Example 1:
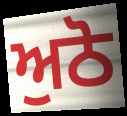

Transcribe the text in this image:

ਅੁਠੋ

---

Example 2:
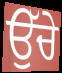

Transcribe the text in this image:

ਉੱਚੇ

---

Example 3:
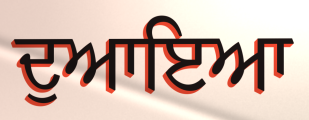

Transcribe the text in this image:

ਦੁਆਇਆ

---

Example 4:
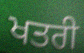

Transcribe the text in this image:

ਖਤਰੀ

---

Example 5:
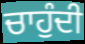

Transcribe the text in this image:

ਚਾਹੁੰਦੀ